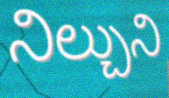
నిల్చుని